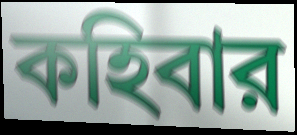
কহিবার